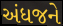
અંધજને